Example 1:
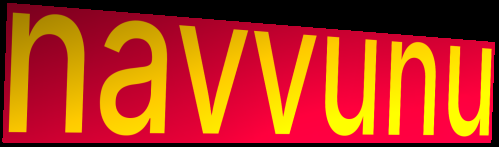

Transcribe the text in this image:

navvunu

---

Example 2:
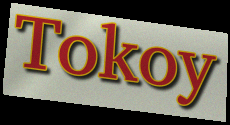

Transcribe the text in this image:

Tokoy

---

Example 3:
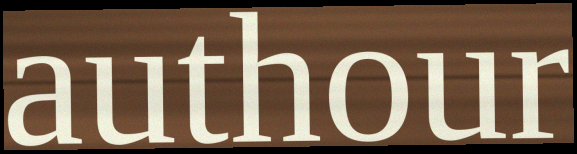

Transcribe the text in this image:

authour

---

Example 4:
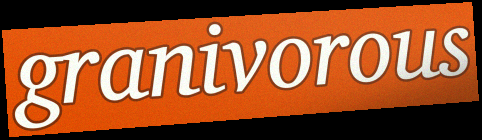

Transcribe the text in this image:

granivorous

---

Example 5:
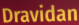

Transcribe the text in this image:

Dravidan